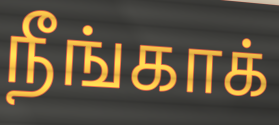
நீங்காக்